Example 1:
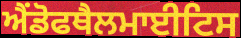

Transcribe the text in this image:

ਐਂਡੋਫਥੈਲਮਾਈਟਿਸ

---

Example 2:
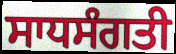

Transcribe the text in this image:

ਸਾਧਸੰਗਤੀ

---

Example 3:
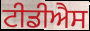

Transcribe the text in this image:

ਟੀਡੀਐਸ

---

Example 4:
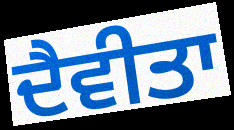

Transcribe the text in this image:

ਦੈਵੀਤਾ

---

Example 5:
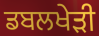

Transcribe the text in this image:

ਡਬਲਖੇੜੀ